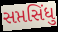
સપ્તસિંધુ